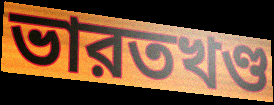
ভারতখণ্ড